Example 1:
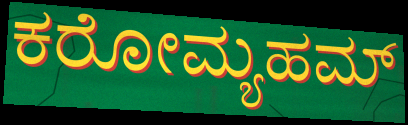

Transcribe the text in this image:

ಕರೋಮ್ಯಹಮ್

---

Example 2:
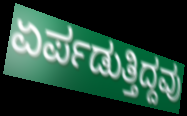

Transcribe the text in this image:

ಏರ್ಪಡುತ್ತಿದ್ದವು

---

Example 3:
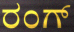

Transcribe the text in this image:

ರಂಗ್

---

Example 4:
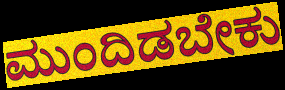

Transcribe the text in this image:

ಮುಂದಿಡಬೇಕು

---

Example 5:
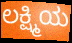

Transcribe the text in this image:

ಲಕ್ಷ್ಮಿಯ